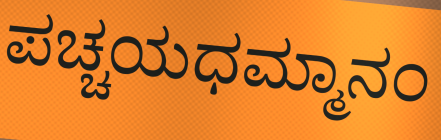
ಪಚ್ಚಯಧಮ್ಮಾನಂ